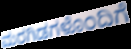
ಮರಗಿಡಗಳೊಂದಿಗೆ